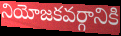
నియోజకవర్గానికి